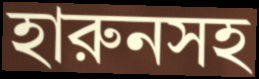
হারুনসহ